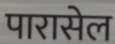
पारासेल